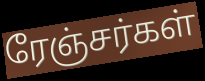
ரேஞ்சர்கள்